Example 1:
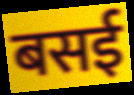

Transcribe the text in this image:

बसई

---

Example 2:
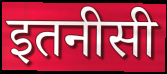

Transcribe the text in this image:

इतनीसी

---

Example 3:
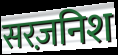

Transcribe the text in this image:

सरज़निश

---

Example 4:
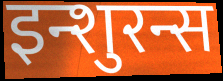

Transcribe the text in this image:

इन्शुरन्स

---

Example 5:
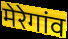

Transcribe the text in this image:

मेरेगांव